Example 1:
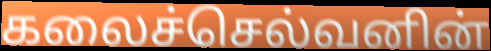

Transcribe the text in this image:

கலைச்செல்வனின்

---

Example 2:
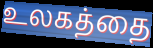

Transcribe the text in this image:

உலகத்தை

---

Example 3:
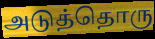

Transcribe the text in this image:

அடுத்தொரு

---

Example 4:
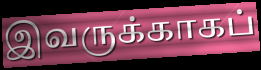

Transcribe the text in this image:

இவருக்காகப்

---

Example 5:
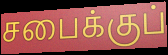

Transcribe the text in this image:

சபைக்குப்